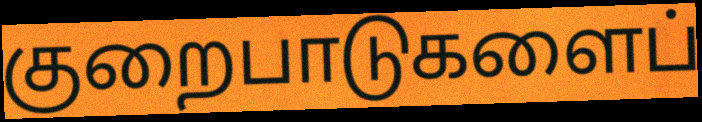
குறைபாடுகளைப்